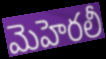
మెహెరలీ